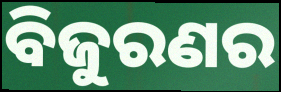
ବିଜୁରଣର